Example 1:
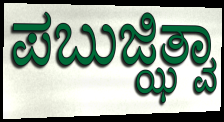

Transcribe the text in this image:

ಪಬುಜ್ಝಿತ್ವಾ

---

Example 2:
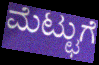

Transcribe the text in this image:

ಮೆಟ್ಟುಗೆ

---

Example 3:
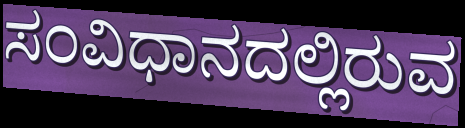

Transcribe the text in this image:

ಸಂವಿಧಾನದಲ್ಲಿರುವ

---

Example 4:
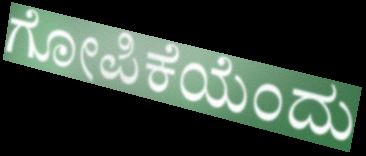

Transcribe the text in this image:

ಗೋಪಿಕೆಯೆಂದು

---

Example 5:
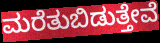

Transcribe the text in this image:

ಮರೆತುಬಿಡುತ್ತೇವೆ